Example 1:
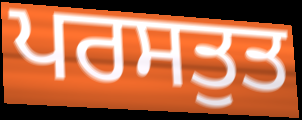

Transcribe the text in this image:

ਪਰਸਤੁਤ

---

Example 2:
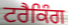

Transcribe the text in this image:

ਟਰੈਕਿੰਗ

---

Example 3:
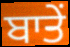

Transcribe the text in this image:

ਬਾਤੇਂ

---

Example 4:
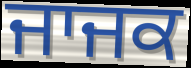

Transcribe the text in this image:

ਜਾਜਕ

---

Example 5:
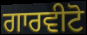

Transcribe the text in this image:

ਗਾਰਵੀਟੋ